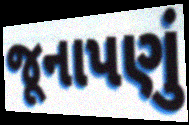
જૂનાપણું